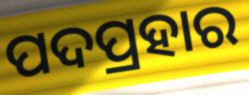
ପଦପ୍ରହାର